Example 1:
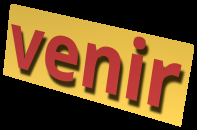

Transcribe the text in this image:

venir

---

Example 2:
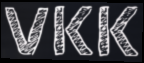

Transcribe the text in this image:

VKK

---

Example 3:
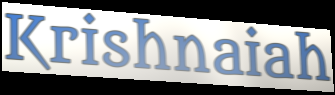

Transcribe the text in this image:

Krishnaiah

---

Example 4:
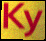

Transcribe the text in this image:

Ky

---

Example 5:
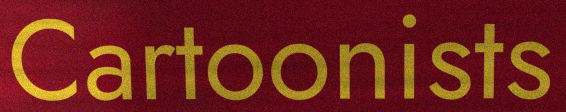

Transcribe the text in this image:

Cartoonists